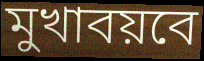
মুখাবয়বে